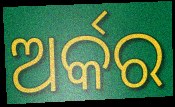
ଅର୍କର